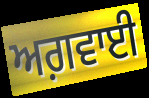
ਅਗ਼ਵਾਈ